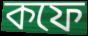
কফে